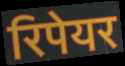
रिपेयर